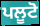
ਪਲੂਟੋ